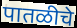
पातळीचे